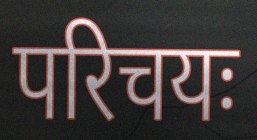
परिचयः